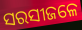
ସରସୀଜଳେ